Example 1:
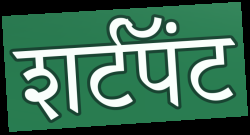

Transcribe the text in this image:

शर्टपॅंट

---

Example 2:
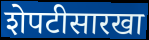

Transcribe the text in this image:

शेपटीसारखा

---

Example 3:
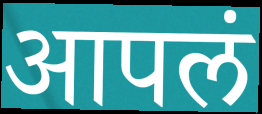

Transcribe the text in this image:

आपलं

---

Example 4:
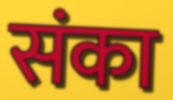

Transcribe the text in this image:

संका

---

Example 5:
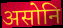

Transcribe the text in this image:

असोनि